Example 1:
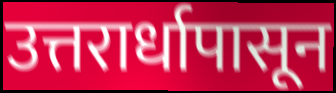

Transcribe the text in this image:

उत्तरार्धापासून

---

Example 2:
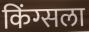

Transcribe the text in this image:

किंग्सला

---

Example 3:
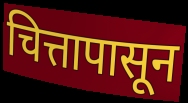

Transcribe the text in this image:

चित्तापासून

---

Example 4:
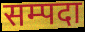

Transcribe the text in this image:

सम्पदा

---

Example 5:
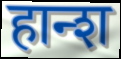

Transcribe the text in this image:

हान्श